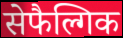
सेफैल्गिक